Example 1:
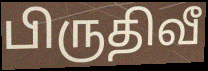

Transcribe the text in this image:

பிருதிவீ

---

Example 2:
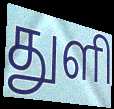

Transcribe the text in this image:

துளி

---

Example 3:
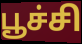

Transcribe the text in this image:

பூச்சி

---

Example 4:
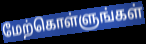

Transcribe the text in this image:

மேற்கொள்ளுங்கள்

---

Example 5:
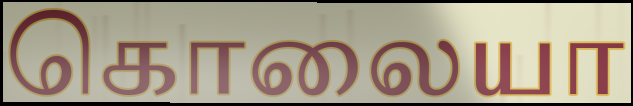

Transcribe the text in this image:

கொலையா